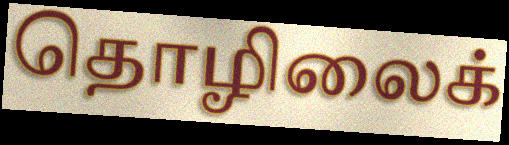
தொழிலைக்